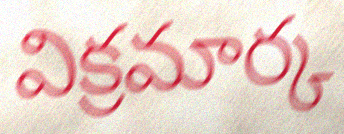
విక్రమార్క